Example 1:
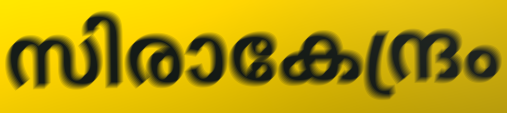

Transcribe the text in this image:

സിരാകേന്ദ്രം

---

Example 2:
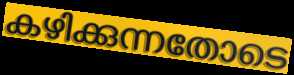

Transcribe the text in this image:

കഴിക്കുന്നതോടെ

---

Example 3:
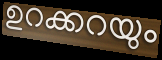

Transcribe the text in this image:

ഉറക്കറയും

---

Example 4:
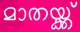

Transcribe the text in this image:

മാതയ്ക്ക്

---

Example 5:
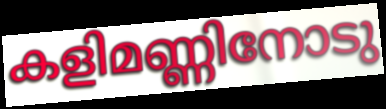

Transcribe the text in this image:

കളിമണ്ണിനോടു